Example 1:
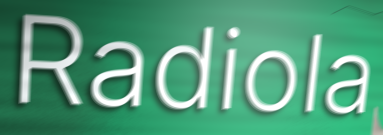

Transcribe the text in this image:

Radiola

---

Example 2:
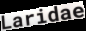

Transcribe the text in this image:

Laridae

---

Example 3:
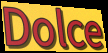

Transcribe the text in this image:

Dolce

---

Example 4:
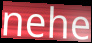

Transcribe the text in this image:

nehe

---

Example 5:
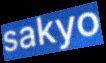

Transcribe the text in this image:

sakyo